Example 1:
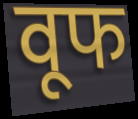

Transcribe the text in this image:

वूफ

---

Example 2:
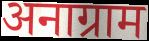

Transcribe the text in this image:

अनाग्राम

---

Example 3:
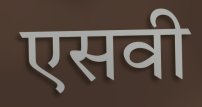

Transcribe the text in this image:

एसवी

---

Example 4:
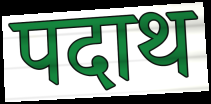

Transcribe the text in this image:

पदाथ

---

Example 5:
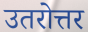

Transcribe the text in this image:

उतरोत्तर